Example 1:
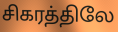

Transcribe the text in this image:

சிகரத்திலே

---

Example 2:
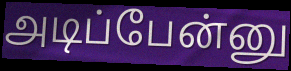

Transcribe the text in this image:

அடிப்பேன்னு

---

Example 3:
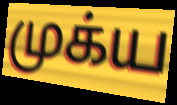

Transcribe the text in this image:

முக்ய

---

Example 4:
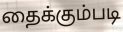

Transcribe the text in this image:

தைக்கும்படி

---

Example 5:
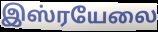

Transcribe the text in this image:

இஸ்ரயேலை